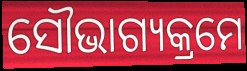
ସୌଭାଗ୍ୟକ୍ରମେ